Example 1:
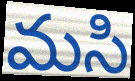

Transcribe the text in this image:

మసి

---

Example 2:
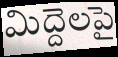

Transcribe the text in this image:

మిద్దెలపై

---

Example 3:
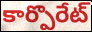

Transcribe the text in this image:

కార్పొరేట్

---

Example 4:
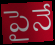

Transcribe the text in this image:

పైనే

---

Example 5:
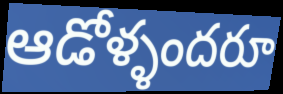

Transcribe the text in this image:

ఆడోళ్ళందరూ